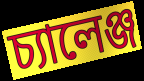
চ্যালেঞ্জ